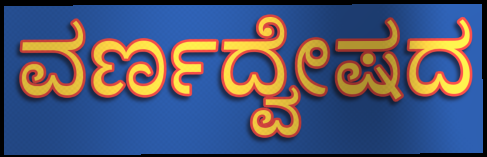
ವರ್ಣದ್ವೇಷದ